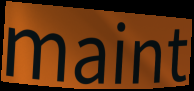
maint